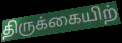
திருக்கையிற்